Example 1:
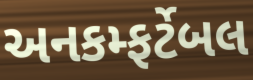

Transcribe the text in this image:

અનકમ્ફર્ટેબલ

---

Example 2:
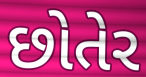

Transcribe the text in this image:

છોતેર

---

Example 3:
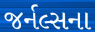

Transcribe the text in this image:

જર્નલ્સના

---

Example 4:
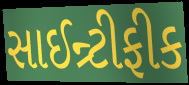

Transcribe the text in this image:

સાઈન્ર્ટીફીક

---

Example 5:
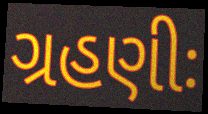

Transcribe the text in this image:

ગ્રહણીઃ